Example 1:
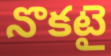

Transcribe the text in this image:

నొకటై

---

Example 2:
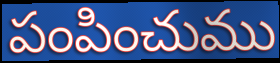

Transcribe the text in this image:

పంపించుము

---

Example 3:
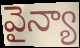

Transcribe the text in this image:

వైన్యా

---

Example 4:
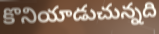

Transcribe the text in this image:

కొనియాడుచున్నది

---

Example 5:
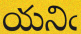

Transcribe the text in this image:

యనిఁ